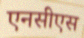
एनसीएस